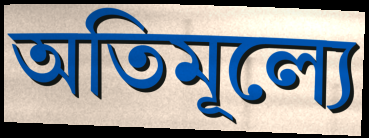
অতিমূল্যে